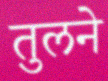
तुलने